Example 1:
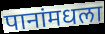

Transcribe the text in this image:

पानांमधला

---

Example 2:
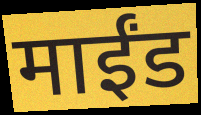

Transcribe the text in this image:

माईंड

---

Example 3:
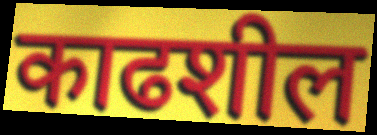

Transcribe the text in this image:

काढशील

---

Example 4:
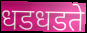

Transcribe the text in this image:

धडधडते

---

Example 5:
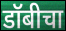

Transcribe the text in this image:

डॉबीचा